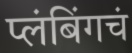
प्लंबिंगचं